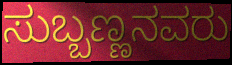
ಸುಬ್ಬಣ್ಣನವರು